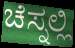
ಚೆಸ್ನಲ್ಲಿ